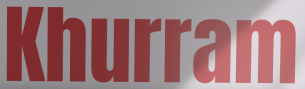
Khurram